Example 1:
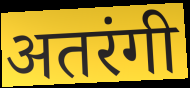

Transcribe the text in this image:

अतरंगी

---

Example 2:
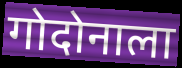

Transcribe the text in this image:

गोदोनाला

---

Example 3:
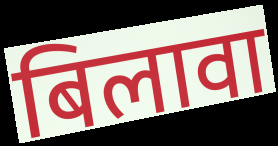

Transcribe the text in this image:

बिलावा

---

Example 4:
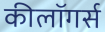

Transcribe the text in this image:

कीलॉगर्स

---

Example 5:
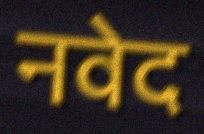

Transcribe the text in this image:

नवेद